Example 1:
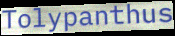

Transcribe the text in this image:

Tolypanthus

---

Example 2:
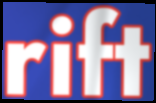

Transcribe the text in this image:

rift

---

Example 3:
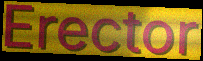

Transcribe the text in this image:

Erector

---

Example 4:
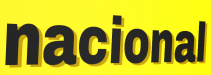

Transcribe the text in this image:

nacional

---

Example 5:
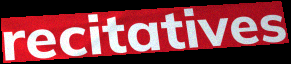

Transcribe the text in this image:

recitatives